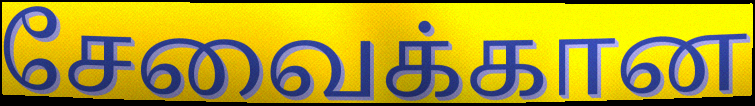
சேவைக்கான